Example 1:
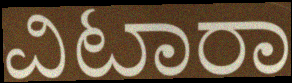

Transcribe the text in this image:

ವಿಟಾರಾ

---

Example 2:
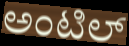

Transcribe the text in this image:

ಅಂಟಿಲ್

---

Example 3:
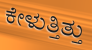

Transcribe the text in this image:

ಕೇಳುತ್ತಿತ್ತು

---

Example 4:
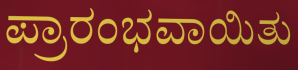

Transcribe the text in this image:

ಪ್ರಾರಂಭವಾಯಿತು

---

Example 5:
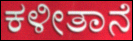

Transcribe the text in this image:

ಕಳೀತಾನೆ